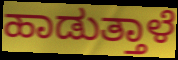
ಹಾಡುತ್ತಾಳೆ